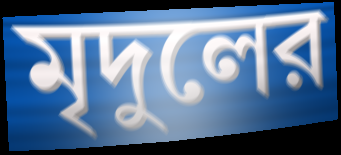
মৃদুলের